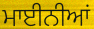
ਮਾਈਨੀਆਂ